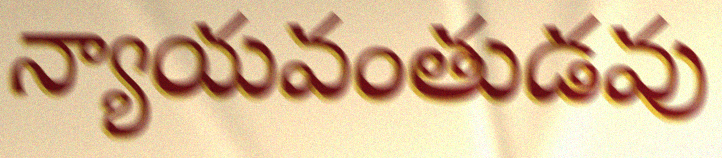
న్యాయవంతుడవు